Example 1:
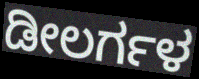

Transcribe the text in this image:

ಡೀಲರ್ಗಳ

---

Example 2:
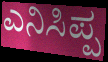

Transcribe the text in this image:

ಎನಿಸಿಪ್ಪ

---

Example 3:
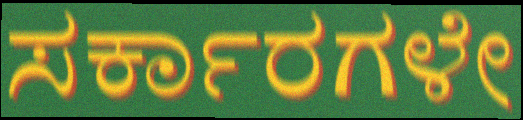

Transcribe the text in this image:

ಸರ್ಕಾರಗಳೇ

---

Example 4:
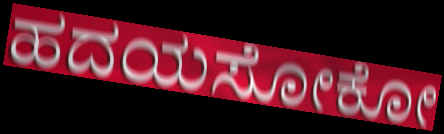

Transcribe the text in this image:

ಹದಯಸೋಕೋ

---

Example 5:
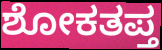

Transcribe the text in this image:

ಶೋಕತಪ್ತ